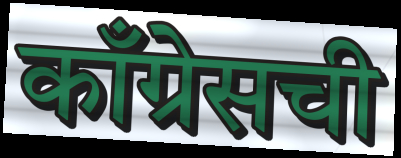
काँग्रेसची